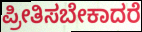
ಪ್ರೀತಿಸಬೇಕಾದರೆ